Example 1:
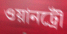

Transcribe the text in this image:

ওয়ানট্রৌ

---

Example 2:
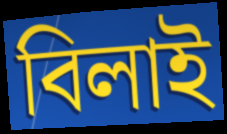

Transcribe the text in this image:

বিলাই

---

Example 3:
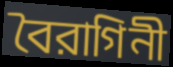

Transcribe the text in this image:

বৈরাগিনী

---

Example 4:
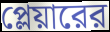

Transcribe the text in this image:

প্লেয়ারের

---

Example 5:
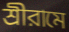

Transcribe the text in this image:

শ্রীরামে